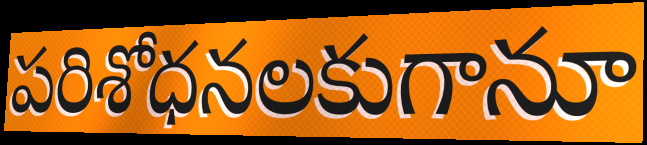
పరిశోధనలకుగానూ